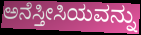
ಅನೆಸ್ತೀಸಿಯವನ್ನು